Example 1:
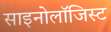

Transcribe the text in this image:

साइनोलॉजिस्ट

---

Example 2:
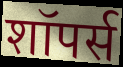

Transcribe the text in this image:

शॉपर्स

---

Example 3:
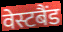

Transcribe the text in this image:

वेस्टबैंड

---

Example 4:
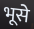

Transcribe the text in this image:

भूसे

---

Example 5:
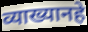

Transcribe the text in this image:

व्याख्यानहे